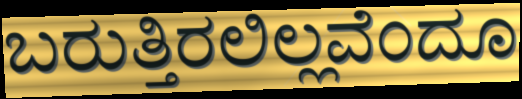
ಬರುತ್ತಿರಲಿಲ್ಲವೆಂದೂ